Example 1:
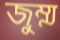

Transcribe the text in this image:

জুম্ম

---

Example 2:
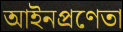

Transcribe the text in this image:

আইনপ্রণেতা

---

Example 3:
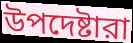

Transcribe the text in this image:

উপদেষ্টারা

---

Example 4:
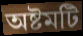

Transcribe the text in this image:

অষ্টমটি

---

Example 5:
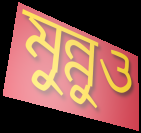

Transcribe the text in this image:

মুন্নুও